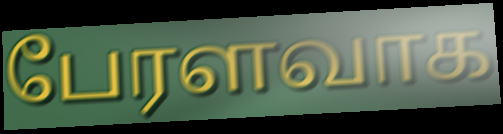
பேரளவாக